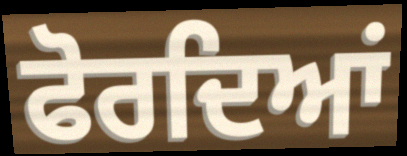
ਫੋਰਦਿਆਂ